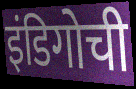
इंडिगोची